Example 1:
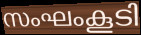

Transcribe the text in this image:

സംഘംകൂടി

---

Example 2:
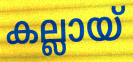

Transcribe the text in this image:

കല്ലായ്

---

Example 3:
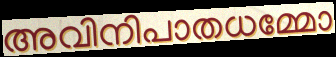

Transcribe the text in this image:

അവിനിപാതധമ്മോ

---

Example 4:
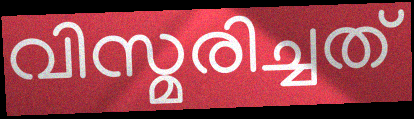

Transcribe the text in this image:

വിസ്മരിച്ചത്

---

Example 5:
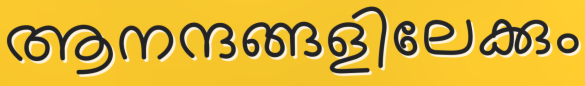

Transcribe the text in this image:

ആനന്ദങ്ങളിലേക്കും